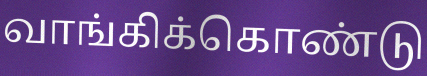
வாங்கிக்கொண்டு